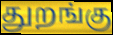
துறங்கு